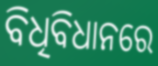
ବିଧିବିଧାନରେ